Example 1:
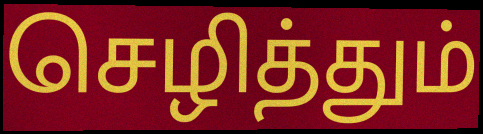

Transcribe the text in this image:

செழித்தும்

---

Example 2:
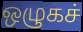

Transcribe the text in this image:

ஒழுகச்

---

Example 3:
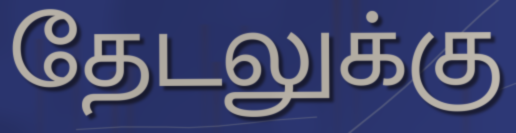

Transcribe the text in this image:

தேடலுக்கு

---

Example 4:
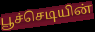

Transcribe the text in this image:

பூச்செடியின்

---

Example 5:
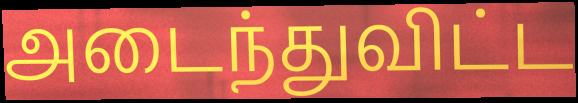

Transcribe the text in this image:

அடைந்துவிட்ட